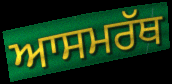
ਆਸਮਰੱਥ